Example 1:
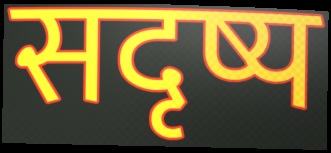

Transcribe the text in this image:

सदृष्य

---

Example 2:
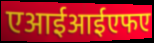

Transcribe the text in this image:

एआईआईएफए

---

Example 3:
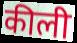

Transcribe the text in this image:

कीली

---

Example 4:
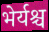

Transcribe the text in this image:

भेर्यश्च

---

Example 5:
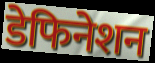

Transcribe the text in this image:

डेफिनेशन